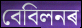
বেবিলনৰ